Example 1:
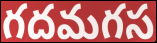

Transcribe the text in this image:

గదమగస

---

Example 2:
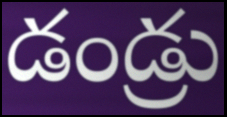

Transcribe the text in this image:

డండ్రు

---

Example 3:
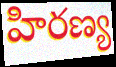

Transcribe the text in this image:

హిరణ్య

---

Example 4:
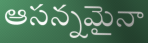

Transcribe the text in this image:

ఆసన్నమైనా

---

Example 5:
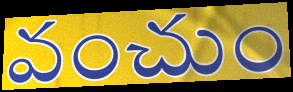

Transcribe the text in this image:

వంచుం